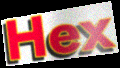
Hex